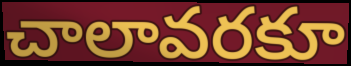
చాలావరకూ